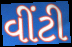
વીંટી